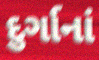
દુર્ગાનાં